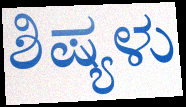
ಶಿಷ್ಯಳು